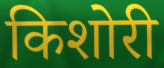
किशोरी